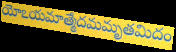
యోఽయమాత్మేదమమృతమిదం